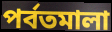
পৰ্বতমালা